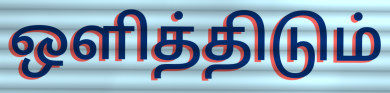
ஒளித்திடும்